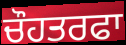
ਚੌਹਤਰਫਾ